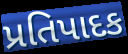
પ્રતિપાદક